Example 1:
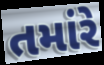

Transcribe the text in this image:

તમાંરે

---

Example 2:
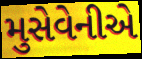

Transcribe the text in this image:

મુસેવેનીએ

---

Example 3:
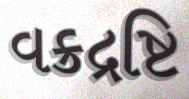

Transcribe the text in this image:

વક્રદ્રષ્ટિ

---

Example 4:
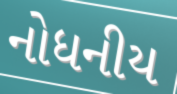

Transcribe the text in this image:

નોધનીય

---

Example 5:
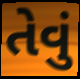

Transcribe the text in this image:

તેવું